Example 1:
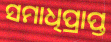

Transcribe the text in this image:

ସମାଧିପ୍ରାପ୍ତ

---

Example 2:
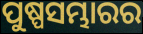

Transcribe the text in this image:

ପୁଷ୍ପସମ୍ଭାରର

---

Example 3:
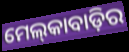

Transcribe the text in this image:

ମେଲ୍‍କାବାଡ଼ିର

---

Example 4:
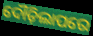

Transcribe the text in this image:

ଦୌଡ଼ିଲାପରେ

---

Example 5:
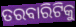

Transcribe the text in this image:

ତରବାରିଟିକୁ